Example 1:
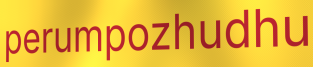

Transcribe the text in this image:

perumpozhudhu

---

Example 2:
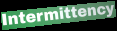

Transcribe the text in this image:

Intermittency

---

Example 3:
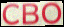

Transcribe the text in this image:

CBO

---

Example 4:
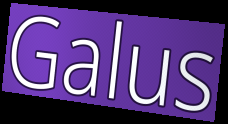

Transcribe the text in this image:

Galus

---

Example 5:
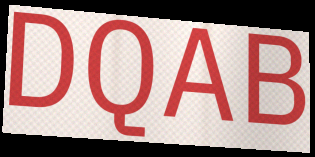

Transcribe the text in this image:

DQAB